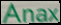
Anax